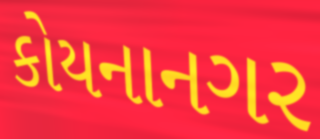
કોયનાનગર